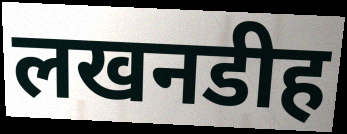
लखनडीह